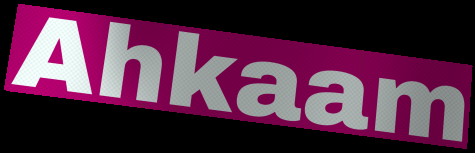
Ahkaam